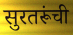
सुरतरूंची